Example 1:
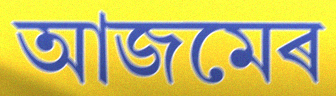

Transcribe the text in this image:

আজমেৰ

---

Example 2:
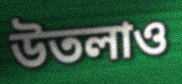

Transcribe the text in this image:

উতলাও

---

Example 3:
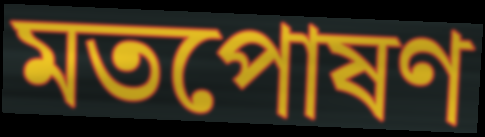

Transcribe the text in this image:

মতপোষণ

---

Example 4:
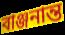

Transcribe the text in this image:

বাঞ্জনান্ত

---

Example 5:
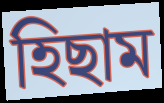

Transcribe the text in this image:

হিছাম